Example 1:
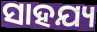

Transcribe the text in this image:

ସାହଯ୍ୟ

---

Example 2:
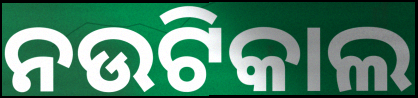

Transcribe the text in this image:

ନଉଟିକାଲ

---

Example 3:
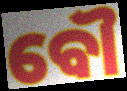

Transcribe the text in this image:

ବୌ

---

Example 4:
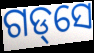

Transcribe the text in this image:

ଗଡ୍‌ସେ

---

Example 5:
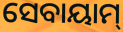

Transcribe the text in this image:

ସେବାୟାମ୍